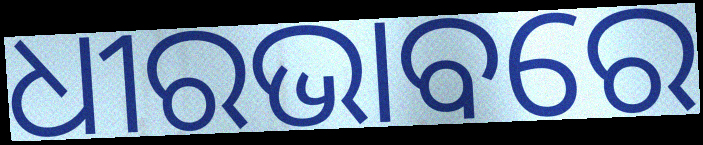
ଧୀରଭାବରେ